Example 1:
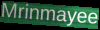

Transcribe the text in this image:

Mrinmayee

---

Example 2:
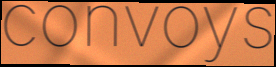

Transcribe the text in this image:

convoys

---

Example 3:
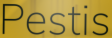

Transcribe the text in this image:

Pestis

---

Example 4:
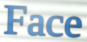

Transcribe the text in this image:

Face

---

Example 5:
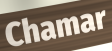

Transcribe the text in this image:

Chamar